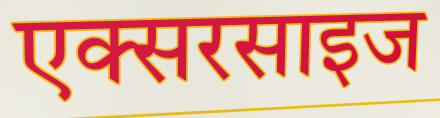
एक्‍सरसाइज